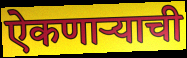
ऐकणार्‍याची